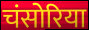
चंसोरिया